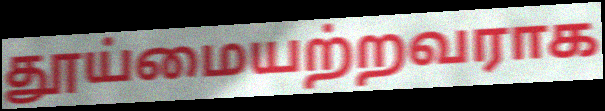
தூய்மையற்றவராக